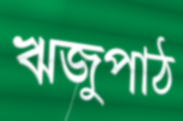
ঋজুপাঠ